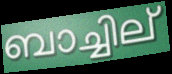
ബാച്ചില്